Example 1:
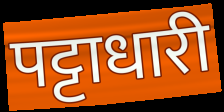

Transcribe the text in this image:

पट्टाधारी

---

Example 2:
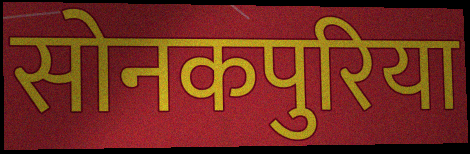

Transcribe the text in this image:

सोनकपुरिया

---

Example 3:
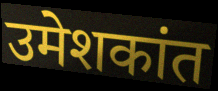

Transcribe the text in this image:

उमेशकांत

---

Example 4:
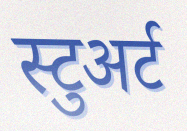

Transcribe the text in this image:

स्टुअर्ट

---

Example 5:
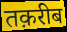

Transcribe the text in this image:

तक़रीब